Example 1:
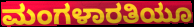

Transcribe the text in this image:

ಮಂಗಳಾರತಿಯೂ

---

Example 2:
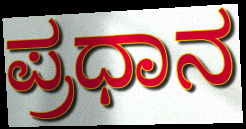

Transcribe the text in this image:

ಪ್ರಧಾನ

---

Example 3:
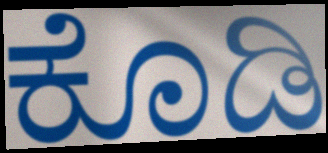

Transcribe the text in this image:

ಕೊಡಿ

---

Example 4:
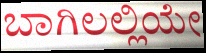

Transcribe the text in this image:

ಬಾಗಿಲಲ್ಲಿಯೇ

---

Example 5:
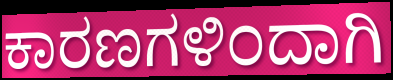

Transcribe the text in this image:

ಕಾರಣಗಳಿಂದಾಗಿ